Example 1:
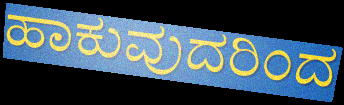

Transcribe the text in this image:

ಹಾಕುವುದರಿಂದ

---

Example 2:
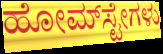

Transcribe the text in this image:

ಹೋಮ್‌ಸ್ಟೇಗಳು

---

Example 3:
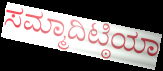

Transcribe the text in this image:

ಸಮ್ಮಾದಿಟ್ಠಿಯಾ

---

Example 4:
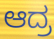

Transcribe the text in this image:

ಆದ್ರ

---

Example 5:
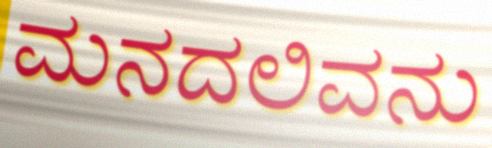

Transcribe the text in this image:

ಮನದಲಿವನು